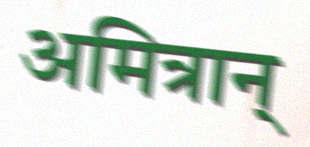
अमित्रान्